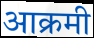
आक्रमी